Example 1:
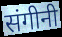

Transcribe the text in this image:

संगीनी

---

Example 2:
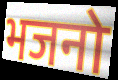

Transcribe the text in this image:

भजनो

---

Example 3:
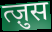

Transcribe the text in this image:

त्ज़ुस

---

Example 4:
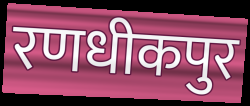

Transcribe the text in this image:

रणधीकपुर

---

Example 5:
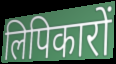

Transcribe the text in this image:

लिपिकारों